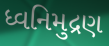
ધ્વનિમુદ્રણ